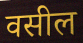
वसील